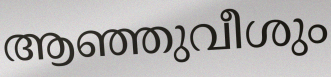
ആഞ്ഞുവീശും